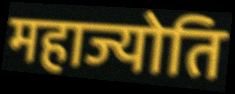
महाज्योति